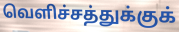
வெளிச்சத்துக்குக்